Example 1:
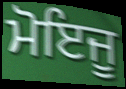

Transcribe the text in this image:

ਮੋਇਜੂ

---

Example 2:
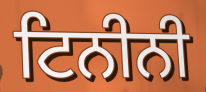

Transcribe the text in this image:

ਟਿਨੀਨੀ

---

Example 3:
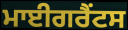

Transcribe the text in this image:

ਮਾਈਗਰੈਂਟਸ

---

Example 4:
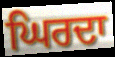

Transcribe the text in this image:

ਘਿਰਦਾ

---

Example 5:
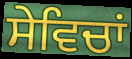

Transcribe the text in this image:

ਸੇਵਿਚਾਂ